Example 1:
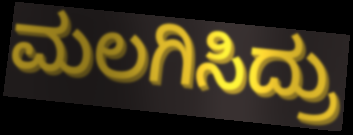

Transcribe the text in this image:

ಮಲಗಿಸಿದ್ರು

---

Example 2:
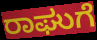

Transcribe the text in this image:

ರಾಘುಗೆ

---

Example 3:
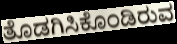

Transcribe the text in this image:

ತೊಡಗಿಸಿಕೊಂಡಿರುವ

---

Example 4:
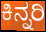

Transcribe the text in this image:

ಕಿನ್ನರಿ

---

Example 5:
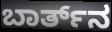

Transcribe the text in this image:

ಬಾರ್ತ್‌ನ